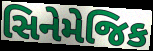
સિનેમેજિક